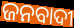
ଜନବାଦୀ